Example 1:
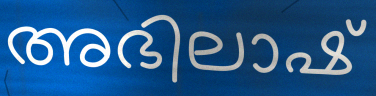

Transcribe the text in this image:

അഭിലാഷ്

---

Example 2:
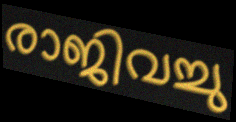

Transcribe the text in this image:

രാജിവച്ചു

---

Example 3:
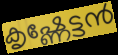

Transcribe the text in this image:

കൃഷ്ണേട്ടൻ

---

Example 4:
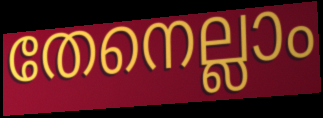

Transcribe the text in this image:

തേനെല്ലാം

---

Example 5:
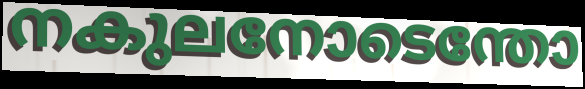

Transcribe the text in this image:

നകുലനോടെന്തോ